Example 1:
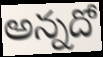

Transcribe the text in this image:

అన్నదో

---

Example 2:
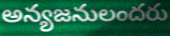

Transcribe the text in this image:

అన్యజనులందరు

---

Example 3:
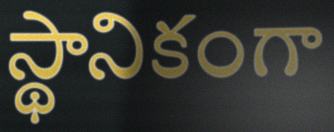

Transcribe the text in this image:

స్థానికంగా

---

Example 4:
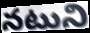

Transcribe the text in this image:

నటుని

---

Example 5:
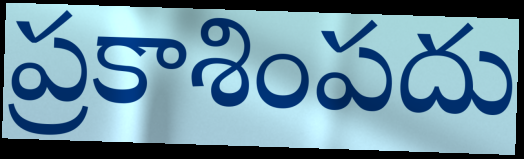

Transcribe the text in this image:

ప్రకాశింపదు